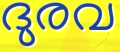
ദുരവ